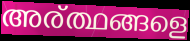
അര്ത്ഥങ്ങളെ